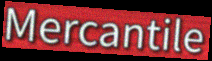
Mercantile